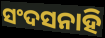
ସଂଦସନାହି